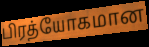
பிரத்யோகமான